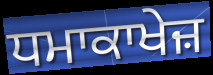
ਧਮਾਕਾਖੇਜ਼